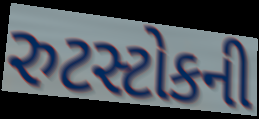
રુટસ્ટોકની